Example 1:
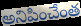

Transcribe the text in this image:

అనిపించేంత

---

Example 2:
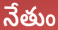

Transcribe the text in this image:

నేతుం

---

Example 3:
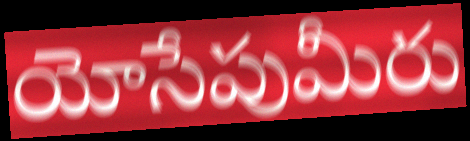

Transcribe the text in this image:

యోసేపుమీరు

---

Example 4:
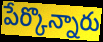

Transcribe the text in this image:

పేర్కొన్నారు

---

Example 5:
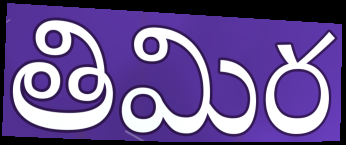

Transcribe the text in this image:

తిమిర